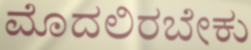
ಮೊದಲಿರಬೇಕು